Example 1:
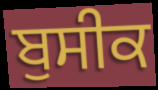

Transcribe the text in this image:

ਬੁਸੀਕ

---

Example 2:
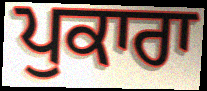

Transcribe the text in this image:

ਪੁਕਾਰਾ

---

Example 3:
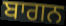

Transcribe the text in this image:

ਬਾਗਨ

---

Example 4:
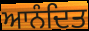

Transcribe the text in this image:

ਆਨੰਦਿਤ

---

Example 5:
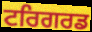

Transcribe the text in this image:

ਟਰਿਗਰਡ